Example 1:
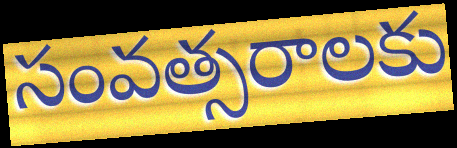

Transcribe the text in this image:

సంవత్సరాలకు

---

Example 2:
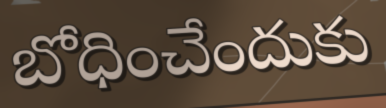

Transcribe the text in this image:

బోధించేందుకు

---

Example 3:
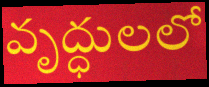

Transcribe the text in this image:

వృద్ధులలో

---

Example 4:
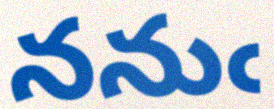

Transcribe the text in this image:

ననుఁ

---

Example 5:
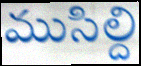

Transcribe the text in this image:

ముసిల్ది